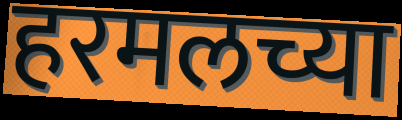
हरमलच्या